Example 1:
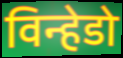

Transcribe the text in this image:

विन्हेडो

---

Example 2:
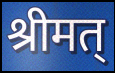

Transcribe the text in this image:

श्रीमत्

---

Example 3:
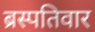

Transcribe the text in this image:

ब्रस्पतिवार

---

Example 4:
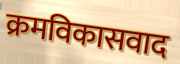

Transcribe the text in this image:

क्रमविकासवाद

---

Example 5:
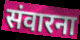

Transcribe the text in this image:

संवारना